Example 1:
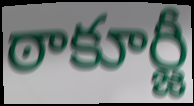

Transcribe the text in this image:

ఠాకూర్జీ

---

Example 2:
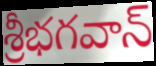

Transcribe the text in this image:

శ్రీభగవాన్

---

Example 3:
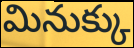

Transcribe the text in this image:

మినుక్కు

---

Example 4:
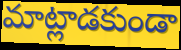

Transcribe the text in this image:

మాట్లాడకుండా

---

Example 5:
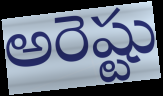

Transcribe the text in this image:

అరెష్టు